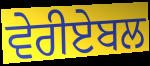
ਵੇਰੀਏਬਲ